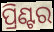
ପ୍ରିଣ୍ଟର